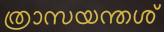
ത്രാസയന്തശ്